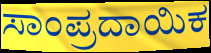
ಸಾಂಪ್ರದಾಯಿಕ